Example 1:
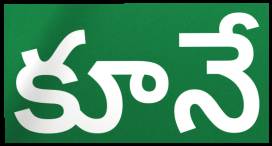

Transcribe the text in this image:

కూనే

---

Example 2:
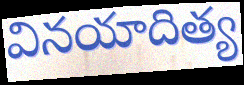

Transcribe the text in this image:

వినయాదిత్య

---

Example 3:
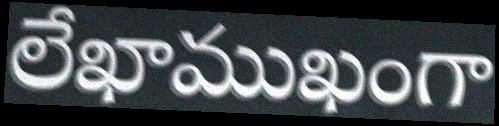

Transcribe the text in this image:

లేఖాముఖంగా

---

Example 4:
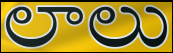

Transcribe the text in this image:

లాలు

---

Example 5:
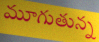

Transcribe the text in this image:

మూగుతున్న